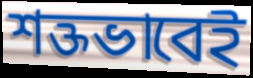
শক্তভাবেই